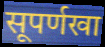
सूपर्णखा